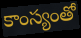
కాంస్యంతో